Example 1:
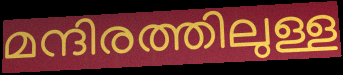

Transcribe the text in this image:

മന്ദിരത്തിലുള്ള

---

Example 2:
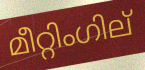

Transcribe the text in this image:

മീറ്റിംഗില്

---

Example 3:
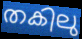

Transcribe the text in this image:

തകിലു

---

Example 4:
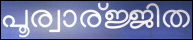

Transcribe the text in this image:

പൂര്വാര്ജ്ജിത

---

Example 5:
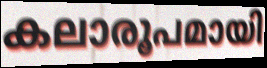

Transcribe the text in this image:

കലാരൂപമായി